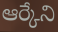
ఆర్కేని